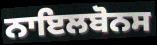
ਨਾਇਲਬੋਨਸ